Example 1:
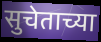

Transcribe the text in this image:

सुचेताच्या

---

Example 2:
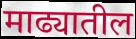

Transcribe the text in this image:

माढ्यातील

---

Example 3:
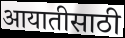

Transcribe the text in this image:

आयातीसाठी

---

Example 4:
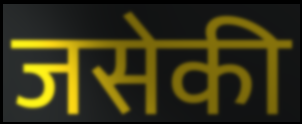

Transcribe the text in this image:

जसेकी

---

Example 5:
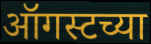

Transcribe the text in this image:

ऑगस्टच्या